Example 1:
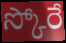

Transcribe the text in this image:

స్కోరే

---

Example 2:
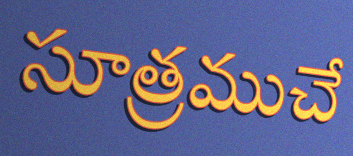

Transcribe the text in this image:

సూత్రముచే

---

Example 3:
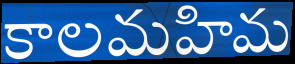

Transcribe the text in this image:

కాలమహిమ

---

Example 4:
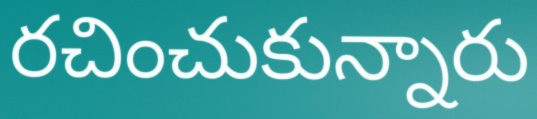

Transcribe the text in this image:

రచించుకున్నారు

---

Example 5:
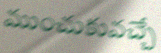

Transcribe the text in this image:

ముంచుకువచ్చే